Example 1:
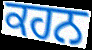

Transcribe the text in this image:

ਕਹਨ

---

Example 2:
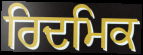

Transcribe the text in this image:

ਰਿਦਮਿਕ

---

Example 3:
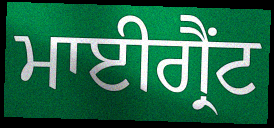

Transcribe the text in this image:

ਮਾਈਗ੍ਰੈਂਟ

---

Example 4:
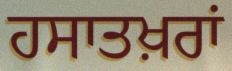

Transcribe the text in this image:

ਹਸਾਤਖ਼ਰਾਂ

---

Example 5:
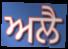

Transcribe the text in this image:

ਅਲੈ